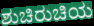
ಶುಚಿರುಚಿಯ